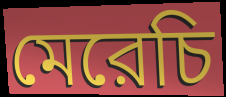
মেরেচি